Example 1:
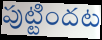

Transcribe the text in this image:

పుట్టిందట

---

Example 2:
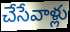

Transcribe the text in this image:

చేసేవాళ్లు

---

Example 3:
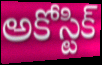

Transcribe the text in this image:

అకోస్టిక్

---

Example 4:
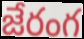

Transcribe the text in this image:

జేరంగ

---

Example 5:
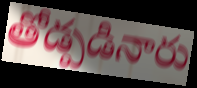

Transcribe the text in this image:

తోడ్పడినారు